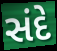
સંદે